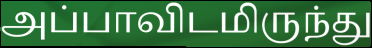
அப்பாவிடமிருந்து